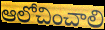
ఆలోచించాలి